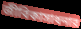
জীবিকাসাধনার